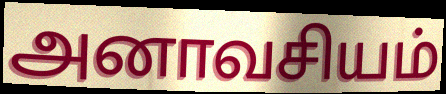
அனாவசியம்